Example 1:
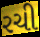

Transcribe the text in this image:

રચી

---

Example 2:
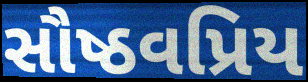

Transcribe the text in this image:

સૌષ્ઠવપ્રિય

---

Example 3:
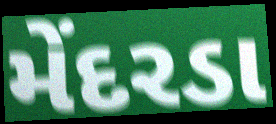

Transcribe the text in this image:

મેંદરડા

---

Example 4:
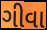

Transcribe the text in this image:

ગીવા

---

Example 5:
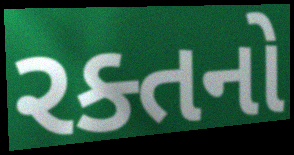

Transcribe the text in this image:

રક્તનો